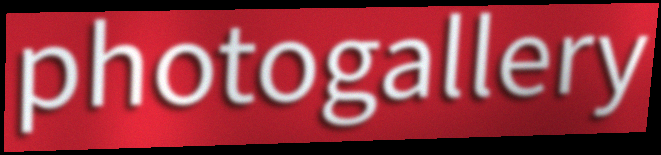
photogallery